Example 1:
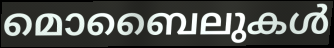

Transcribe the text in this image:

മൊബൈലുകൾ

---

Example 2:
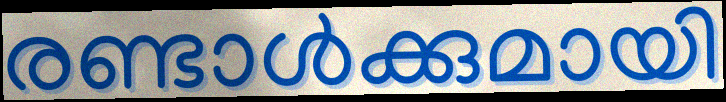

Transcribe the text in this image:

രണ്ടാൾക്കുമായി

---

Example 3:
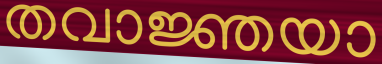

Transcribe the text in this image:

തവാജ്ഞയാ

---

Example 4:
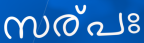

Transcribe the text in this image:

സര്പഃ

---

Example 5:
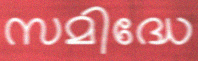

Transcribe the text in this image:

സമിദ്ധേ